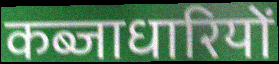
कब्जाधारियों